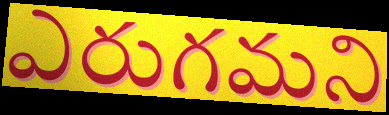
ఎరుగమని